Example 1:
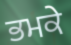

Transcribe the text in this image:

ਭਮਕੇ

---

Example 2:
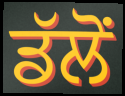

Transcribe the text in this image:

ਡੱਲੋਂ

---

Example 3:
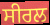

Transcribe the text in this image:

ਸੀਰਲ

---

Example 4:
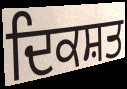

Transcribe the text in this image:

ਦਿਕਸ਼ਤ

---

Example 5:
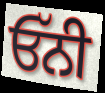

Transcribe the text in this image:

ਓੱਨੀ